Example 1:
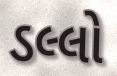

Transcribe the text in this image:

ડલ્લો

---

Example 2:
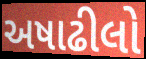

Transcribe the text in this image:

અષાઢીલો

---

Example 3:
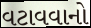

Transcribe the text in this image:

વટાવવાનો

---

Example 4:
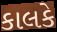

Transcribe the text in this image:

કાલકે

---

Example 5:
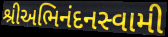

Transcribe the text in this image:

શ્રીઅભિનંદનસ્વામી